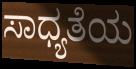
ಸಾಧ್ಯತೆಯ